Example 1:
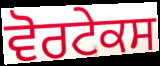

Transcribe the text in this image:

ਵੋਰਟੇਕਸ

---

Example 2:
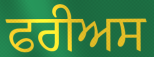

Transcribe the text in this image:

ਫਰੀਅਸ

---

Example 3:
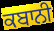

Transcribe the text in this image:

ਕਬਾਨੀ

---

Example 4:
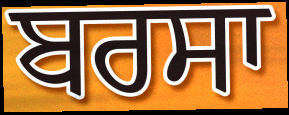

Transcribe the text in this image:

ਬਰਸਾ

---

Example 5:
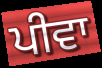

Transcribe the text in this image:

ਪੀਵਾ